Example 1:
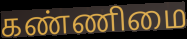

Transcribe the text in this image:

கண்ணிமை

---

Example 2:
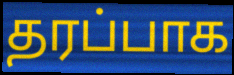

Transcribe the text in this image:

தரப்பாக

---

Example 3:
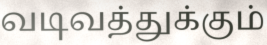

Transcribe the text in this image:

வடிவத்துக்கும்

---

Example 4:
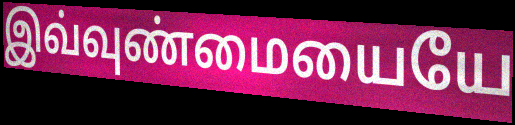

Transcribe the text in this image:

இவ்வுண்மையையே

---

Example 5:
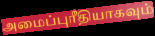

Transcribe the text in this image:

அமைப்புரீதியாகவும்